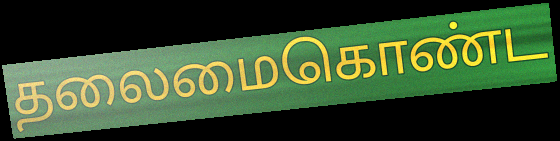
தலைமைகொண்ட